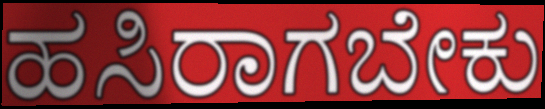
ಹಸಿರಾಗಬೇಕು